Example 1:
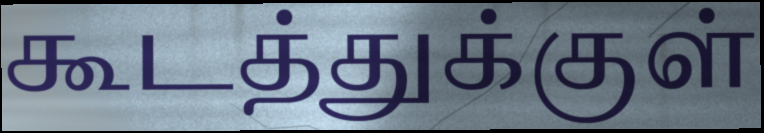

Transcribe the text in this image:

கூடத்துக்குள்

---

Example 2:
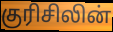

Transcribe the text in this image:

குரிசிலின்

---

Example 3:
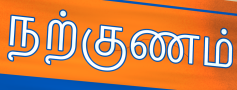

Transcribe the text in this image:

நற்குணம்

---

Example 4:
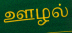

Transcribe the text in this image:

ஊழல்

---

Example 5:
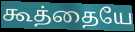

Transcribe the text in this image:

கூத்தையே